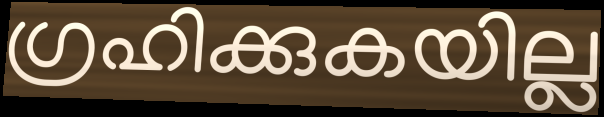
ഗ്രഹിക്കുകയില്ല